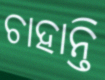
ଚାହାନ୍ତି